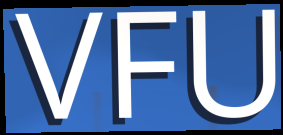
VFU